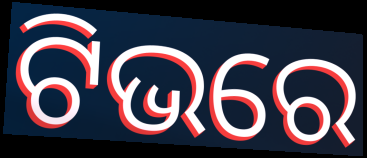
ଟିଭରେ